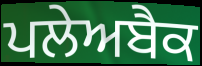
ਪਲੇਅਬੈਕ